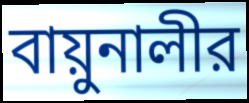
বায়ুনালীর